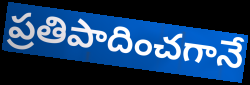
ప్రతిపాదించగానే